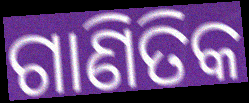
ଗାଣିତିକ